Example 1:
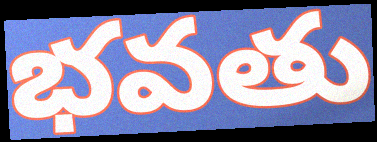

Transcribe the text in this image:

భవతు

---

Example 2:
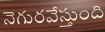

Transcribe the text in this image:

నెగురవేస్తుంది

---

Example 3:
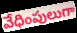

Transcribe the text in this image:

వేధింపులుగా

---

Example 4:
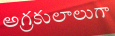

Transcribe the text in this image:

అగ్రకులాలుగా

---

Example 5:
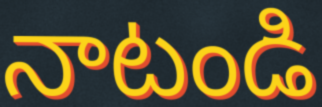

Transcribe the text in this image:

నాటండి